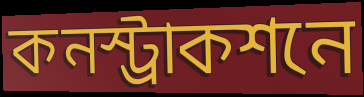
কনস্ট্রাকশনে